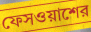
ফেসওয়াশের